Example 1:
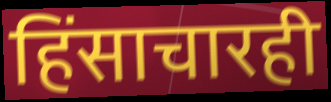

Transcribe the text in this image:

हिंसाचारही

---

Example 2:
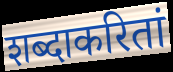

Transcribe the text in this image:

शब्दाकरितां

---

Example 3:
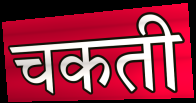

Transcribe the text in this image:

चकती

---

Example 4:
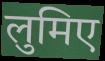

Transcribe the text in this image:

लुमिए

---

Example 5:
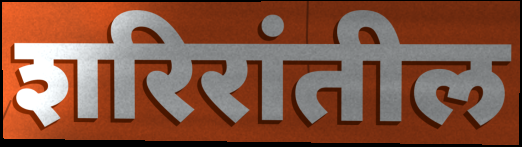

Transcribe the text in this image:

शरिरांतील